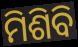
ମିଶିବି